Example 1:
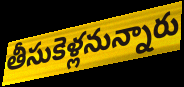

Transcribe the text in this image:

తీసుకెళ్లనున్నారు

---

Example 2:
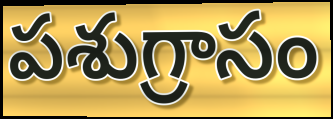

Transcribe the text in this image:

పశుగ్రాసం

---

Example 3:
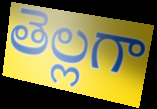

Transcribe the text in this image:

తెల్లగా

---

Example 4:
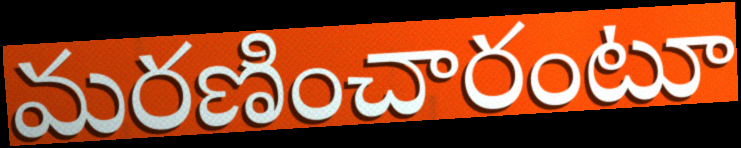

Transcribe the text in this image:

మరణించారంటూ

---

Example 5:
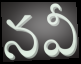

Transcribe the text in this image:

నవీ